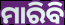
ମାରିବି